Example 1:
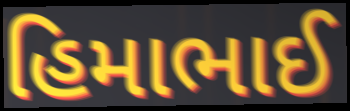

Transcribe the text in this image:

હિમાભાઈ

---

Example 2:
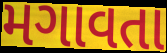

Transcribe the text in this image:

મગાવતા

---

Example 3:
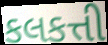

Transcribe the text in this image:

કલકત્તી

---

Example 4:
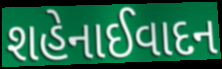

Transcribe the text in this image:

શહેનાઈવાદન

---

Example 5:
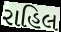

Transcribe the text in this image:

રાહિલ